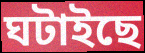
ঘটাইছে